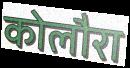
कोलौरा